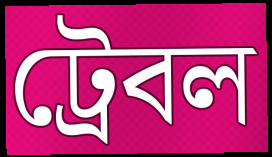
ট্রেবল